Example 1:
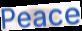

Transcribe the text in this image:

Peace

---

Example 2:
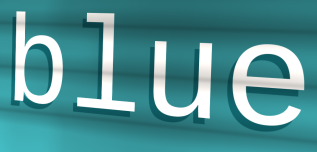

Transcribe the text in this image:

blue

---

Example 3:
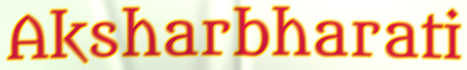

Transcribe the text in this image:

Aksharbharati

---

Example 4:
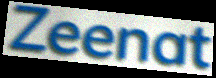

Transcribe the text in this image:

Zeenat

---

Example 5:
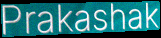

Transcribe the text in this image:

Prakashak